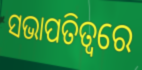
ସଭାପତିତ୍ଵରେ